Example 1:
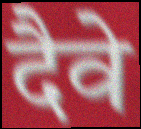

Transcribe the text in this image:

दैवे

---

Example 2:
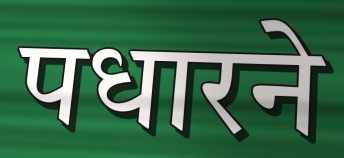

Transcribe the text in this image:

पधारने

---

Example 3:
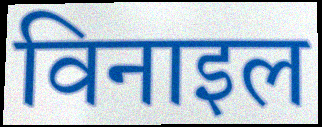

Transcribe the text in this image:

विनाइल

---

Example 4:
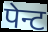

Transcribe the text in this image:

पेन्ट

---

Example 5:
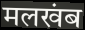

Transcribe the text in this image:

मलखंब